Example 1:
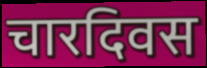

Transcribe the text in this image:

चारदिवस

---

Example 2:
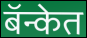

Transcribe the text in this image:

बॅन्केत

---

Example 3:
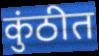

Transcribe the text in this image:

कुंठीत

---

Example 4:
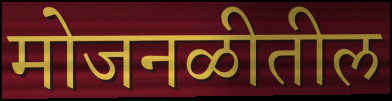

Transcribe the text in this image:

मोजनळीतील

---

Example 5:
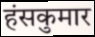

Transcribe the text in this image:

हंसकुमार